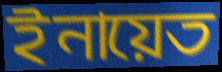
ইনায়েত